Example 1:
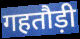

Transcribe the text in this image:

गहतौड़ी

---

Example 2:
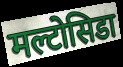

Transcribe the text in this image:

मल्टोसिडा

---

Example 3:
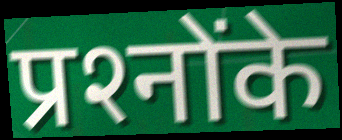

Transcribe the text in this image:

प्रश्नोंके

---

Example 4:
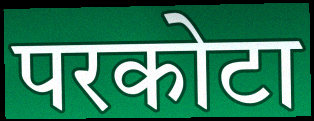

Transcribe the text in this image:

परकोटा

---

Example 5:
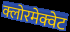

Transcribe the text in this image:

क्लोरमेक्वेट